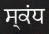
ਸ੍ਕਂਧ